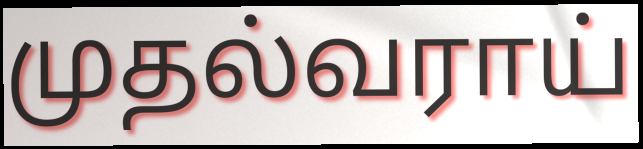
முதல்வராய்